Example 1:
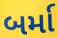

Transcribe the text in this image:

બર્મા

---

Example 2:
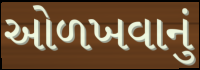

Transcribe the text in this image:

ઓળખવાનું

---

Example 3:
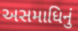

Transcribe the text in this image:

અસમાધિનું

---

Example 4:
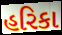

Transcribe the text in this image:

હરિકા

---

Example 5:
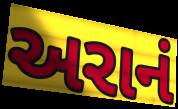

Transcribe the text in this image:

અરાનં